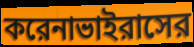
করেনাভাইরাসের